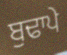
ਬੁਢਾਪੇ